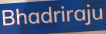
Bhadriraju